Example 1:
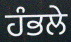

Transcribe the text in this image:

ਹੰਭਲੇ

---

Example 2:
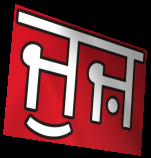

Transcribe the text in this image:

ਜੁਜ਼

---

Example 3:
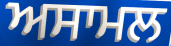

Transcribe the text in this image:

ਅਸਾਮਲ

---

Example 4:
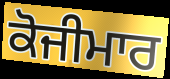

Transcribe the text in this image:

ਕੋਜੀਮਾਰ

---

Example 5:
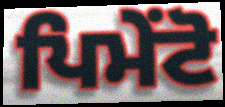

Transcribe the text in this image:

ਪਿਮੇਂਟੋ